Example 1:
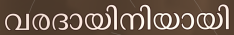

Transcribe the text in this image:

വരദായിനിയായി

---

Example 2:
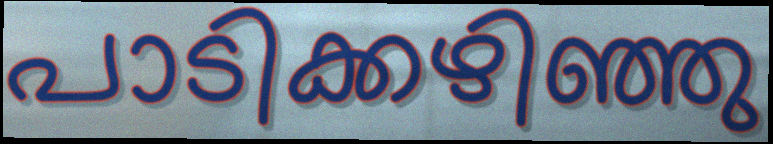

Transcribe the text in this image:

പാടിക്കഴിഞ്ഞു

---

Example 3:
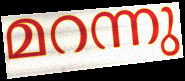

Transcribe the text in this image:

മറന്നു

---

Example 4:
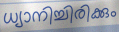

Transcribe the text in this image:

ധ്യാനിച്ചിരിക്കും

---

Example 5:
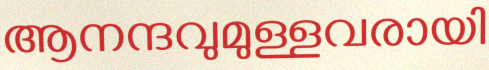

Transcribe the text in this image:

ആനന്ദവുമുള്ളവരായി